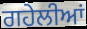
ਗਹੇਲੀਆਂ